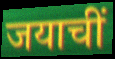
जयाचीं